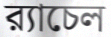
র‍্যাচেল